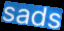
sads